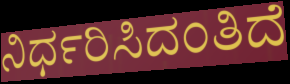
ನಿರ್ಧರಿಸಿದಂತಿದೆ